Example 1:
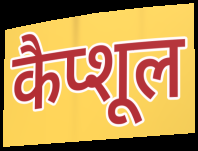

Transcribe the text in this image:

कैप्शूल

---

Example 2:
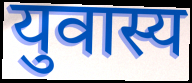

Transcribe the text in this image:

युवास्य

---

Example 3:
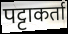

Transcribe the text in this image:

पट्टाकर्ता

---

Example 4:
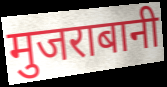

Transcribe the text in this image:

मुजराबानी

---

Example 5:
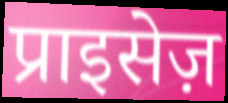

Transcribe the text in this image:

प्राइसेज़